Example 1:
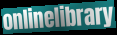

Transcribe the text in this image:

onlinelibrary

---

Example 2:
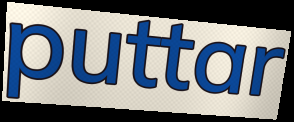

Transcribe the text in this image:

puttar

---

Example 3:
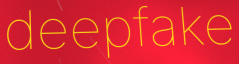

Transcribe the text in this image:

deepfake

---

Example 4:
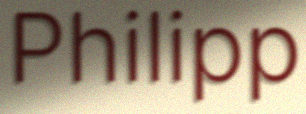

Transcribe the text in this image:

Philipp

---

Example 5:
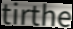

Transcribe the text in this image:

tirthe